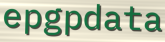
epgpdata